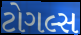
ટોગલ્સ